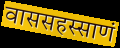
वाससहस्साणं